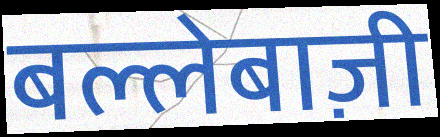
बल्लेबाज़ी